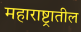
महाराष्ट्रातील